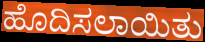
ಹೊದಿಸಲಾಯಿತು